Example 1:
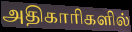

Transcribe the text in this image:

அதிகாரிகளில்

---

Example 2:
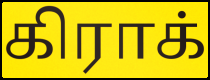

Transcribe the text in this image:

கிராக்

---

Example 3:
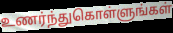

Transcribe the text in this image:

உணர்ந்துகொள்ளுங்கள்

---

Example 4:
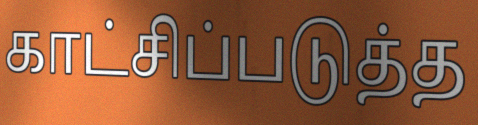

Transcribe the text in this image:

காட்சிப்படுத்த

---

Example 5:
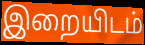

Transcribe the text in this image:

இறையிடம்